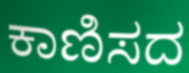
ಕಾಣಿಸದ